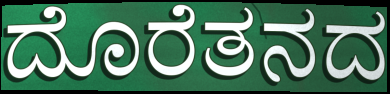
ದೊರೆತನದ